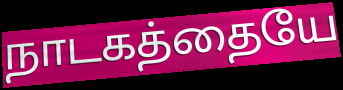
நாடகத்தையே